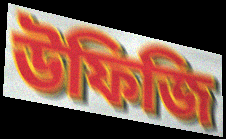
উফিজি